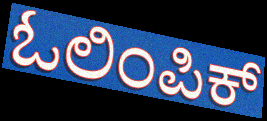
ಓಲಿಂಪಿಕ್